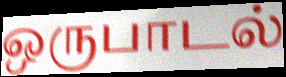
ஒருபாடல்